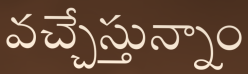
వచ్చేస్తున్నాం